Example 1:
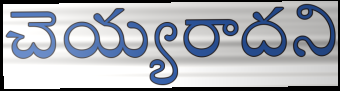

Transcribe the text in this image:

చెయ్యరాదని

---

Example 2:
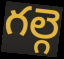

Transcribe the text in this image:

గల్గె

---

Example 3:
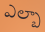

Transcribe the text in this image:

ఎల్బా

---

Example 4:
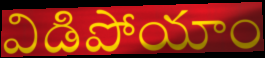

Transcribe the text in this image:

విడిపోయాం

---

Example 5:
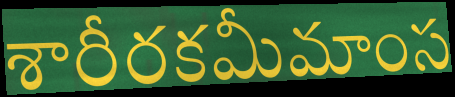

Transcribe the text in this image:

శారీరకమీమాంస